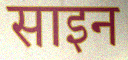
साइन